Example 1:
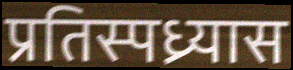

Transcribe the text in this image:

प्रतिस्पध्र्यास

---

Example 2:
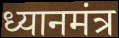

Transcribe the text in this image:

ध्यानमंत्र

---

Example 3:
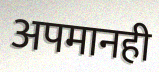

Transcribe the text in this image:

अपमानही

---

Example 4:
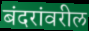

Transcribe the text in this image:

बंदरांवरील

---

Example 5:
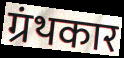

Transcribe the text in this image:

ग्रंथकार